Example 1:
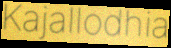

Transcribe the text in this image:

Kajallodhia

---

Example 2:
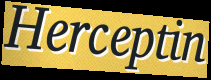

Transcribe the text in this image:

Herceptin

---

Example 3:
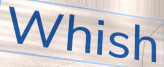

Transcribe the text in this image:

Whish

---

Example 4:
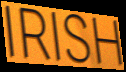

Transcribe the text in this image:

IRISH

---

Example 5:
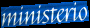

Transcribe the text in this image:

ministerio